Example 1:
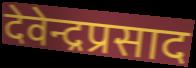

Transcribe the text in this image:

देवेन्द्रप्रसाद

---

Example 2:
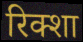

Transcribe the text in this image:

रिक्शा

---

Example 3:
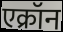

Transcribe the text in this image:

एक्रॉन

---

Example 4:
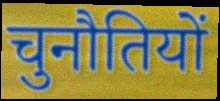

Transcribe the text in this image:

चुनौतियों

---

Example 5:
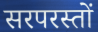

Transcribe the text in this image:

सरपरस्तों